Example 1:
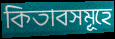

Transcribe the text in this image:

কিতাবসমূহে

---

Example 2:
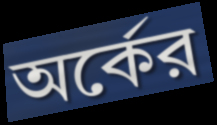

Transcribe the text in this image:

অর্কের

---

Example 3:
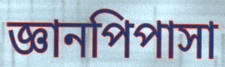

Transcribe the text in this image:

জ্ঞানপিপাসা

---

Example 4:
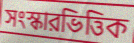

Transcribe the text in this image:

সংস্কারভিত্তিক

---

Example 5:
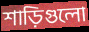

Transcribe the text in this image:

শাড়িগুলো